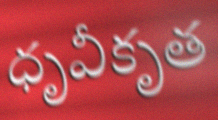
ధృవీకృత